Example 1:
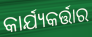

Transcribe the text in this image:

କାର୍ଯ୍ୟକର୍ତ୍ତାର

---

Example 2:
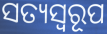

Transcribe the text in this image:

ସତ୍ୟସ୍ୱରୂପ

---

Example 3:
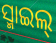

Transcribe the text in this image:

ସ୍ମାଇଲ୍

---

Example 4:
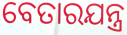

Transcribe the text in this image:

ବେତାରଯନ୍ତ୍ର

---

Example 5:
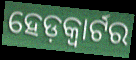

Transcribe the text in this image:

ହେଡ଼କ୍ୱାର୍ଟର